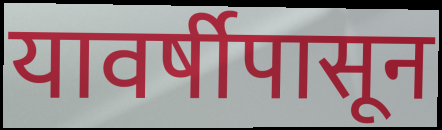
यावर्षीपासून